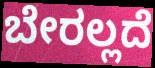
ಬೇರಲ್ಲದೆ